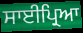
ਸਾਈਪ੍ਰਿਆ